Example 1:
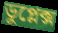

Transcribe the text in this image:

ডুপ্লেক্স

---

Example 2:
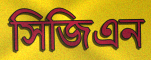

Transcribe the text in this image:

সিজিএন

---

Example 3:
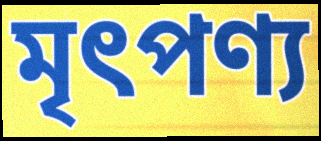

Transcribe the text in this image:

মৃৎপণ্য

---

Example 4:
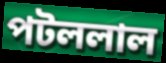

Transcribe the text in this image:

পটললাল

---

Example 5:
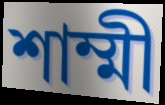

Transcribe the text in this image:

শাম্মী